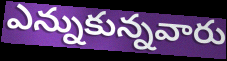
ఎన్నుకున్నవారు